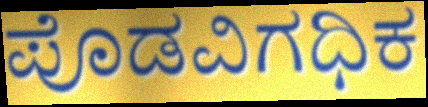
ಪೊಡವಿಗಧಿಕ